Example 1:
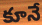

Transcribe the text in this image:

కూనే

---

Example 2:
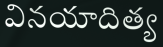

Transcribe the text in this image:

వినయాదిత్య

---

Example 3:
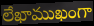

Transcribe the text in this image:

లేఖాముఖంగా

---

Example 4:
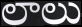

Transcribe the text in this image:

లాలు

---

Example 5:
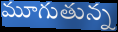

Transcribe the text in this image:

మూగుతున్న